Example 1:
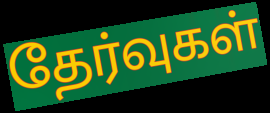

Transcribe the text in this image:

தேர்வுகள்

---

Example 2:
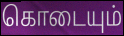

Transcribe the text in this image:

கொடையும்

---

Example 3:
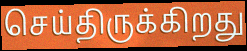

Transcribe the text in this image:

செய்திருக்கிறது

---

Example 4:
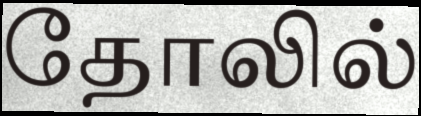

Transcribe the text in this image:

தோலில்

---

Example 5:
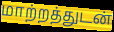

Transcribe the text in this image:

மாற்றத்துடன்